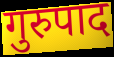
गुरुपाद